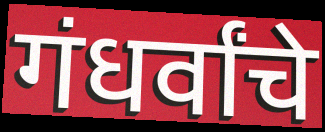
गंधर्वांचे